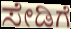
ಸೇಡಿಗೆ